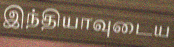
இந்தியாவுடைய